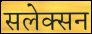
सलेक्सन